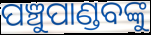
ପଞ୍ଚୁପାଣ୍ଡବଙ୍କୁ